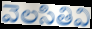
వెలసితివి